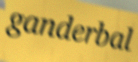
ganderbal